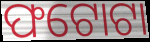
ଫଟୋଟା